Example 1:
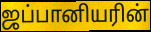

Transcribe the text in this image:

ஜப்பானியரின்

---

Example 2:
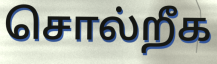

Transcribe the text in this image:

சொல்றீக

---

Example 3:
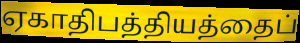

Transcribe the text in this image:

ஏகாதிபத்தியத்தைப்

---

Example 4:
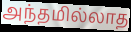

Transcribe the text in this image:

அந்தமில்லாத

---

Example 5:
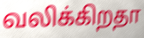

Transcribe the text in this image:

வலிக்கிறதா